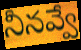
నీనవ్వే